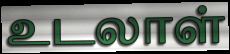
உடலாள்